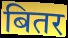
बितर